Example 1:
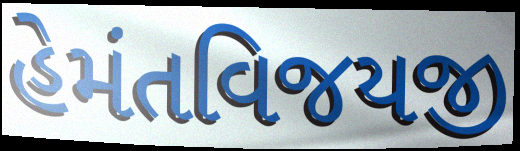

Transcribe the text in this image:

હેમંતવિજયજી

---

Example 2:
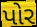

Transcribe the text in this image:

પોર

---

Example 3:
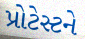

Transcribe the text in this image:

પ્રોટેસ્ટને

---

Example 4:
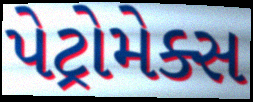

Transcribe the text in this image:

પેટ્રોમેક્સ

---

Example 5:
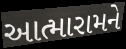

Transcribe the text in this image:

આત્મારામને